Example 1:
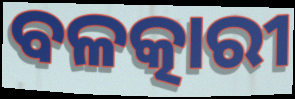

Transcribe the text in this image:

ବଳତ୍କାରୀ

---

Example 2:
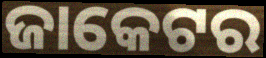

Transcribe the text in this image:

ଜାକେଟର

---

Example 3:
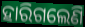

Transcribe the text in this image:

ହାରିଗଲେଣି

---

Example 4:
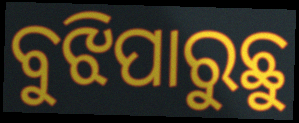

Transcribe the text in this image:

ବୁଝିପାରୁଛୁ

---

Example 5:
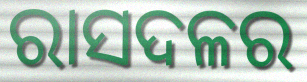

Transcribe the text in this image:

ରାସଦଳର